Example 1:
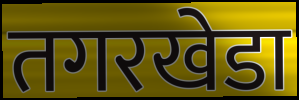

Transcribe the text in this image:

तगरखेडा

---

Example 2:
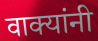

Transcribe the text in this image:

वाक्यांनी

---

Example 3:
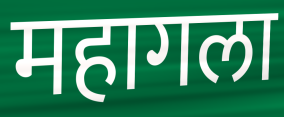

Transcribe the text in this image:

महागला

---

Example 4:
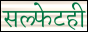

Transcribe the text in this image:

सल्फेटही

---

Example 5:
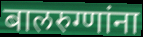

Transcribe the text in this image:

बालरुग्णांना